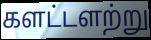
களட்டளற்று